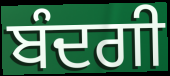
ਬੰਦਗੀ